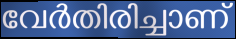
വേർതിരിച്ചാണ്